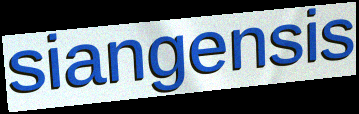
siangensis